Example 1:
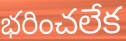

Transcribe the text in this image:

భరించలేక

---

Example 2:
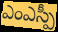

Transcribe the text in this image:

ఎంఎస్పీ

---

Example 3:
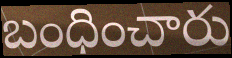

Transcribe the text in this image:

బంధించారు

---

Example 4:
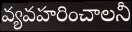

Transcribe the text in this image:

వ్యవహరించాలనీ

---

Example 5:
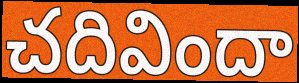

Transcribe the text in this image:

చదివిందా